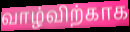
வாழ்விற்காக